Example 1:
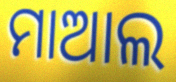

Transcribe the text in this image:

ମାଆଲ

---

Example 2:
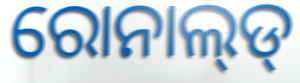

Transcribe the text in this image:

ରୋନାଲ୍‌ଡ୍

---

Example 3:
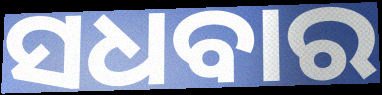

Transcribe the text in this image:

ସଧବାର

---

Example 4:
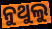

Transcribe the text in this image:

ନୁଥୁଲୁ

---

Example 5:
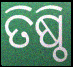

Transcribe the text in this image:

ତିଷ୍ଠି